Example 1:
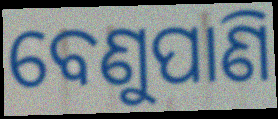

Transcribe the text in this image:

ବେଣୁପାଣି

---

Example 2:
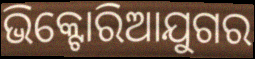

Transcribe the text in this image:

ଭିକ୍ଟୋରିଆଯୁଗର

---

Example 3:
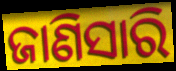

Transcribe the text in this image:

ଜାଣିସାରି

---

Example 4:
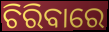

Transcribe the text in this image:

ଚିରିବାରେ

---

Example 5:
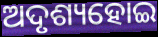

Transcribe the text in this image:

ଅଦୃଶ୍ୟହୋଇ